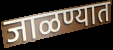
जाळण्यात